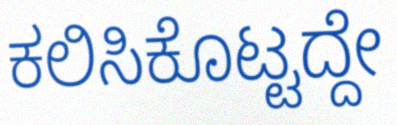
ಕಲಿಸಿಕೊಟ್ಟದ್ದೇ